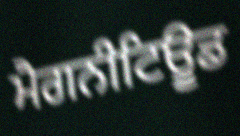
ਮੈਗਨੀਟਿਊਡ